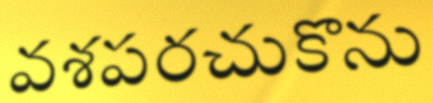
వశపరచుకొను